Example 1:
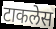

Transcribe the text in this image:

टाकलेस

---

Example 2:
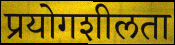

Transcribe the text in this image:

प्रयोगशीलता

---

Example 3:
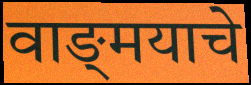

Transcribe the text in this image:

वाङ्‍मयाचे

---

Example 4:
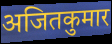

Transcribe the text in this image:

अजितकुमार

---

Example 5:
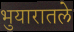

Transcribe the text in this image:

भुयारातले